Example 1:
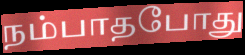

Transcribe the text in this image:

நம்பாதபோது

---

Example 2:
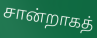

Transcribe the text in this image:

சான்றாகத்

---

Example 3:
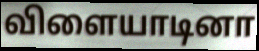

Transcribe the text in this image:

விளையாடினா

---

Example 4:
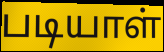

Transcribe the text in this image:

படியாள்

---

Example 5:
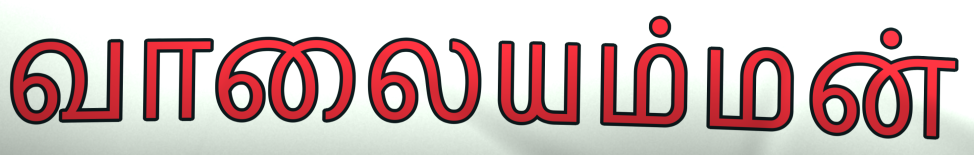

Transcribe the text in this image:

வாலையம்மன்